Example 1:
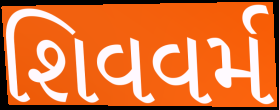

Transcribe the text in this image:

શિવવર્મ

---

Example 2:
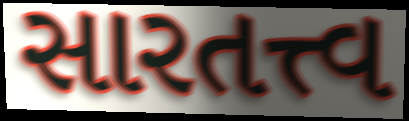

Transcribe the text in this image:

સારતત્ત્વ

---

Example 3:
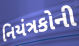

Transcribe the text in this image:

નિયંત્રકોની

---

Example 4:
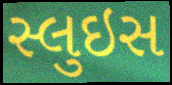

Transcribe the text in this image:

સ્લુઇસ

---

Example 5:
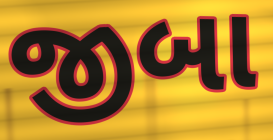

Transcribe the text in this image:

જીબા